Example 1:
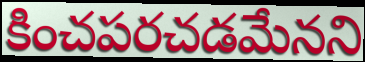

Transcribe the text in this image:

కించపరచడమేనని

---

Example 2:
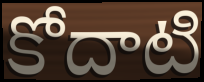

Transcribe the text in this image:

కోదాటి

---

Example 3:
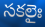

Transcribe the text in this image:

సకలైః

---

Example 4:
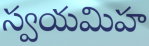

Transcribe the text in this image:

స్వయమిహ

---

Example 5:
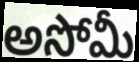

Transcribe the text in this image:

అసోమీ